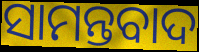
ସାମନ୍ତବାଦ